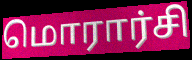
மொரார்சி